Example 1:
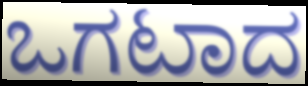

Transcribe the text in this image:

ಒಗಟಾದ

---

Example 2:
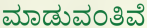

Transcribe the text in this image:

ಮಾಡುವಂತಿವೆ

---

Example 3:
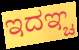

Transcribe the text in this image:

ಇದಞ್ಚ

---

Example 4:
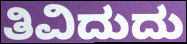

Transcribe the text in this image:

ತಿವಿದುದು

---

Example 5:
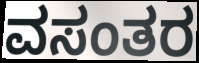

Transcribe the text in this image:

ವಸಂತರ